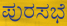
ಪುರಸಭೆ